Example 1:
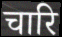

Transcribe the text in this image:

चारि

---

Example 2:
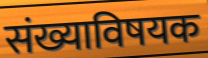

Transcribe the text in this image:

संख्याविषयक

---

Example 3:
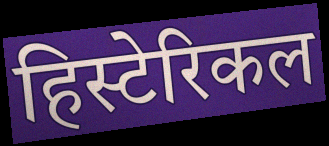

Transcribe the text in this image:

हिस्टेरिकल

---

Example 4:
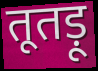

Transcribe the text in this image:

तूतड़ू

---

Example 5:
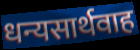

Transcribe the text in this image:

धन्यसार्थवाह